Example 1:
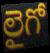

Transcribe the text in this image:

లైగో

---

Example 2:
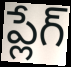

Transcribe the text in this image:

ప్లేగ్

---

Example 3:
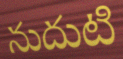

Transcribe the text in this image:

నుదుటి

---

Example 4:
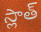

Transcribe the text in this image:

స్లాత్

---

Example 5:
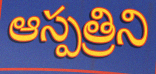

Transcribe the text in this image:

ఆస్పత్రిని